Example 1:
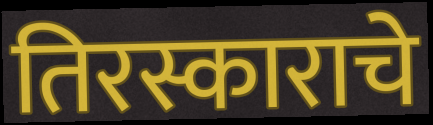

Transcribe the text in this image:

तिरस्काराचे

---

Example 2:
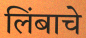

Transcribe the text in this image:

लिंबाचे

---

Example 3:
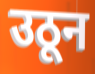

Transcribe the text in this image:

उठून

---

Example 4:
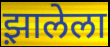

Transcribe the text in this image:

झ़ालेला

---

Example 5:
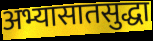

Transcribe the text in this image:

अभ्यासातसुद्धा